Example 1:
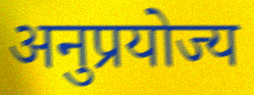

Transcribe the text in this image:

अनुप्रयोज्य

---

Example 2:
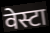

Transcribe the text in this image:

वेस्टा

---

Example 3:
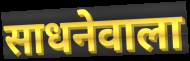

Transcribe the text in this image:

साधनेवाला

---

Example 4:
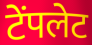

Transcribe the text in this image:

टेंपलेट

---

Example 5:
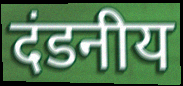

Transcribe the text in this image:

दंडनीय